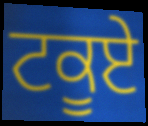
ਟਕੂਏ